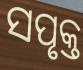
ସପୃକ୍ତ